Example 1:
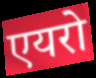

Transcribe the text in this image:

एयरो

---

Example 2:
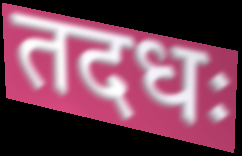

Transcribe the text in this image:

तदधः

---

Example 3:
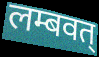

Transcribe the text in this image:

लम्बवत्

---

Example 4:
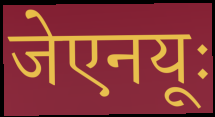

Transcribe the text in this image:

जेएनयूः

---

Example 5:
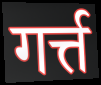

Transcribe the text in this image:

गर्त्त